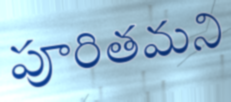
పూరితమని